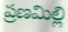
ప్రణమిల్లి